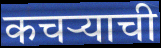
कचऱ्याची